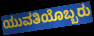
ಯುವತಿಯೊಬ್ಬರು